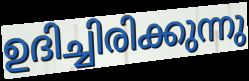
ഉദിച്ചിരിക്കുന്നു